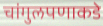
चांगुलपणाकडे